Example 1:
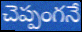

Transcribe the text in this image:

చెప్పంగనే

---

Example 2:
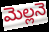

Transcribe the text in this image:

మెల్లనె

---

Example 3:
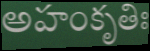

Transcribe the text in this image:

అహంకృతిః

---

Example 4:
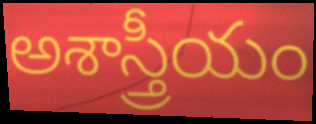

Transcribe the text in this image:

అశాస్త్రీయం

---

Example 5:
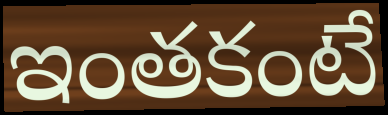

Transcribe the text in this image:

ఇంతకంటే